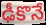
ఢీకొనే